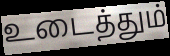
உடைத்தும்